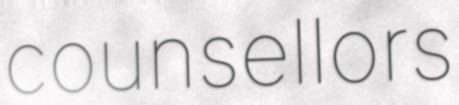
counsellors